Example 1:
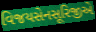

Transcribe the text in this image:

વિજયસેનસૂરિજીએ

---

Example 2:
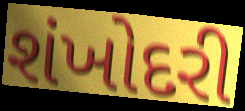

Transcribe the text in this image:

શંખોદરી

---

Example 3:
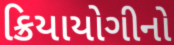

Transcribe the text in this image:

ક્રિયાયોગીનો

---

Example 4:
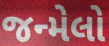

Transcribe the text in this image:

જન્મેલો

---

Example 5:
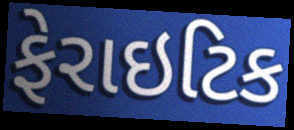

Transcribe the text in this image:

ફેરાઇટિક